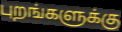
புறங்களுக்கு